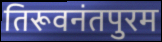
तिरूवनंतपुरम